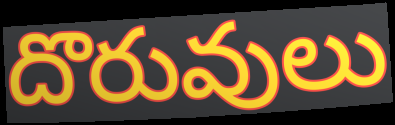
దొరువులు